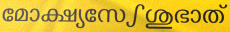
മോക്ഷ്യസേഽശുഭാത്